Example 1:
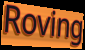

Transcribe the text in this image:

Roving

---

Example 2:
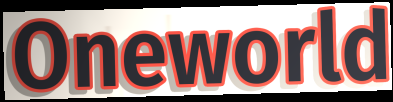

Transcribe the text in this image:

Oneworld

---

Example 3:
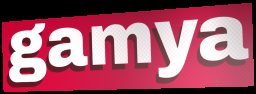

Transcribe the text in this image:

gamya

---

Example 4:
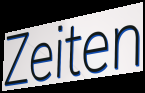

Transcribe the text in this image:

Zeiten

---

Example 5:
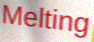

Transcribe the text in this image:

Melting